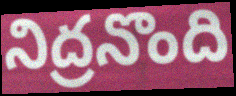
నిద్రనొంది